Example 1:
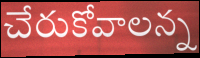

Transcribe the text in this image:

చేరుకోవాలన్న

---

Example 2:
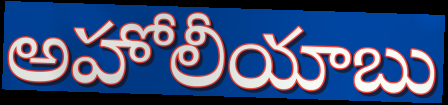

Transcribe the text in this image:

అహోలీయాబు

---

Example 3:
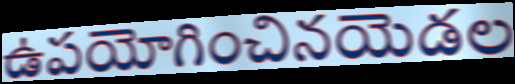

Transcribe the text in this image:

ఉపయోగించినయెడల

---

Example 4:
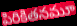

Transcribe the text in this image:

పిరికితనమూ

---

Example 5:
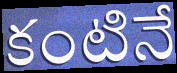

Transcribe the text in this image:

కంటినే